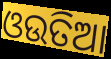
ଓଉତିଆ